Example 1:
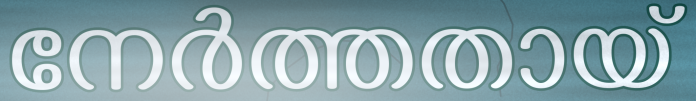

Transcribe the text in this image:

നേർത്തതായ്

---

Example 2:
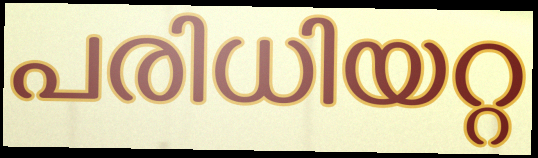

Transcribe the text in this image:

പരിധിയറ്റ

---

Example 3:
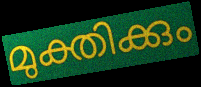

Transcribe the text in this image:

മുക്തിക്കും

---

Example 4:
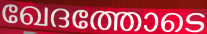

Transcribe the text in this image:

ഖേദത്തോടെ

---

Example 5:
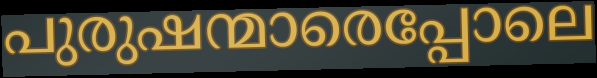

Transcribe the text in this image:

പുരുഷന്മാരെപ്പോലെ